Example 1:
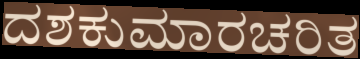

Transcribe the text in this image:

ದಶಕುಮಾರಚರಿತ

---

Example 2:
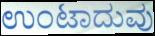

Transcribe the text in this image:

ಉಂಟಾದುವು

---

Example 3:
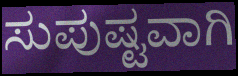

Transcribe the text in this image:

ಸುಪುಷ್ಟವಾಗಿ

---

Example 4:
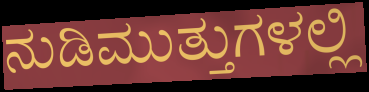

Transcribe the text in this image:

ನುಡಿಮುತ್ತುಗಳಲ್ಲಿ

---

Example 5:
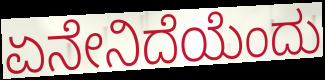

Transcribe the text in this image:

ಏನೇನಿದೆಯೆಂದು